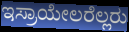
ಇಸ್ರಾಯೇಲರೆಲ್ಲರು